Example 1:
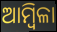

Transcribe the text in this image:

ଆମ୍ବିଳା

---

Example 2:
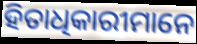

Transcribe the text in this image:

ହିତାଧିକାରୀମାନେ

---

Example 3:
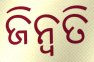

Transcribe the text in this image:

ଜିନ୍ୱତି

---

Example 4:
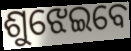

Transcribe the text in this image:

ଶୁଝେଇବେ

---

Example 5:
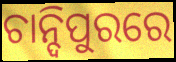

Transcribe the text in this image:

ଚାନ୍ଦିପୁରରେ